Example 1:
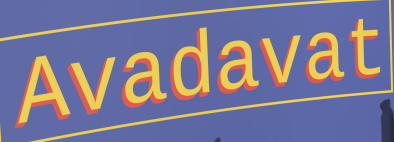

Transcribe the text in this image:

Avadavat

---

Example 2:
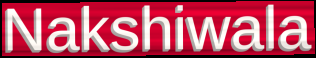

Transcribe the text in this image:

Nakshiwala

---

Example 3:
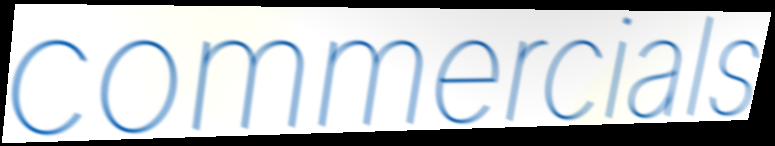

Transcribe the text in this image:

commercials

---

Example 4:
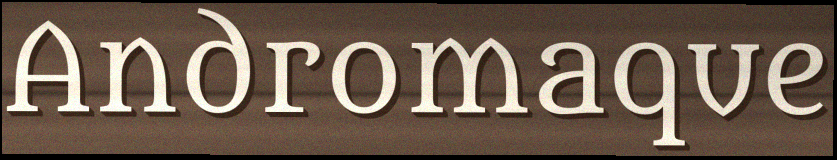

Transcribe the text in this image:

Andromaque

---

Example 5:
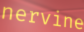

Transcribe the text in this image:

nervine